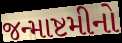
જન્માષ્ટમીનો